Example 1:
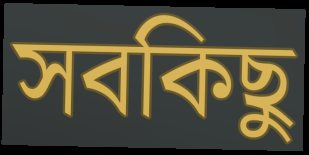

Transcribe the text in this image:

সবকিছু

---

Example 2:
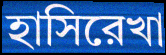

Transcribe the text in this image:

হাসিরেখা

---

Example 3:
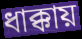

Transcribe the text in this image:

ধাক্কায়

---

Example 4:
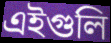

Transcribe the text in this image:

এইগুলি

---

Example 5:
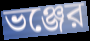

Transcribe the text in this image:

ভঞ্জের